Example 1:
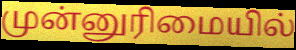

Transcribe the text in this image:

முன்னுரிமையில்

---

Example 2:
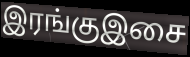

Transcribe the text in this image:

இரங்குஇசை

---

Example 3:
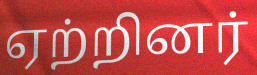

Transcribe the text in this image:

ஏற்றினர்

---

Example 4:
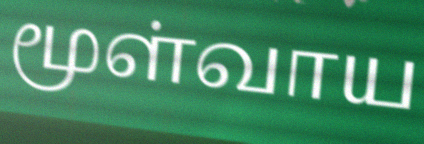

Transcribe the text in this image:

மூள்வாய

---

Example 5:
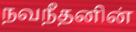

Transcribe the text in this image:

நவநீதனின்